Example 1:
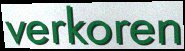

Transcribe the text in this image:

verkoren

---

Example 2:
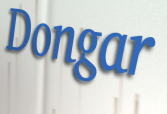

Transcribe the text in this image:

Dongar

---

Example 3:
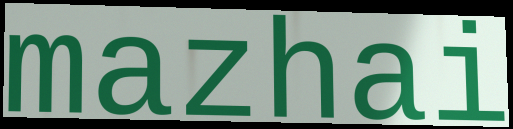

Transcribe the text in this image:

mazhai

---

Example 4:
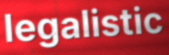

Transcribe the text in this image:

legalistic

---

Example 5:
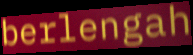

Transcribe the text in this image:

berlengah